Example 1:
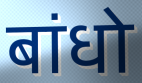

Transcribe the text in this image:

बांधो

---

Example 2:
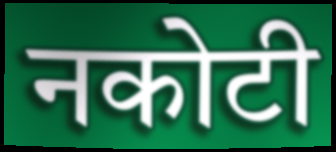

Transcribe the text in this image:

नकोटी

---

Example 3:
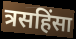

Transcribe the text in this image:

त्रसहिंसा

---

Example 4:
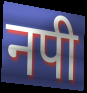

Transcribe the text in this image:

नपी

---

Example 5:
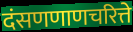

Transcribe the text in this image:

दंसणणाणचरित्ते